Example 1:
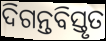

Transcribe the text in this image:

ଦିଗନ୍ତବିସ୍ତୃତ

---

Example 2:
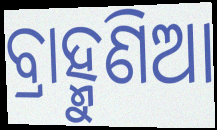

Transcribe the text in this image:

ବ୍ରାହ୍ମୁଣିଆ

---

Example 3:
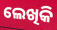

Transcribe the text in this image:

ଲେଖିକି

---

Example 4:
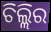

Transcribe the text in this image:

ଚିଲ୍ଲିର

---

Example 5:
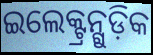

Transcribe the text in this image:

ଇଲେକ୍ଟ୍ରନ୍ଗୁଡ଼ିକ